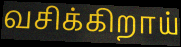
வசிக்கிறாய்